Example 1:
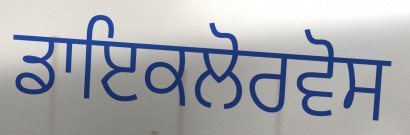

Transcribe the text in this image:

ਡਾਇਕਲੋਰਵੋਸ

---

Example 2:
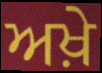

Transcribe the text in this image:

ਅਖ਼ੇ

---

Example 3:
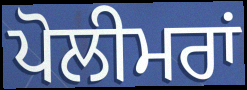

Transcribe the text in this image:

ਪੋਲੀਮਰਾਂ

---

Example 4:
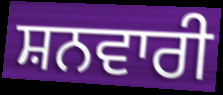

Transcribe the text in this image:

ਸ਼ਨਵਾਰੀ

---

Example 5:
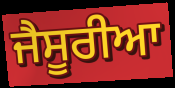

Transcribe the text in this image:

ਜੈਸੂਰੀਆ